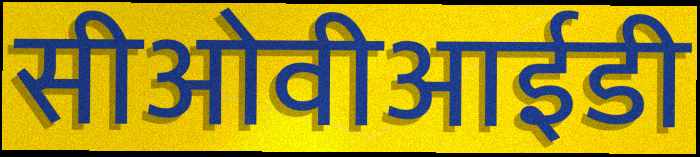
सीओवीआईडी